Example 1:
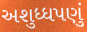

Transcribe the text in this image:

અશુધ્ધપણું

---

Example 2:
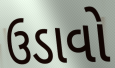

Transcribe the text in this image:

ઉડાવો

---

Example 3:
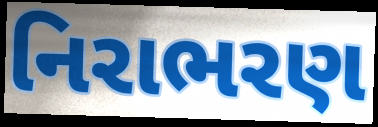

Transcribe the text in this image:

નિરાભરણ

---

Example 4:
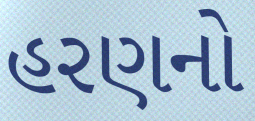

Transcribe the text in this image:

હરણનો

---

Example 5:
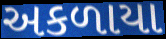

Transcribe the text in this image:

અકળાયા